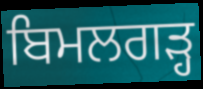
ਬਿਮਲਗੜ੍ਹ